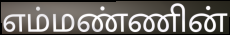
எம்மண்ணின்